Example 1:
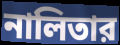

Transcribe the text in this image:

নালিতার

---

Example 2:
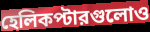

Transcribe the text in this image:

হেলিকপ্টারগুলোও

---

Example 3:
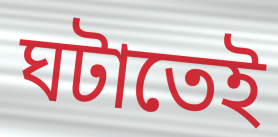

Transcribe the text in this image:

ঘটাতেই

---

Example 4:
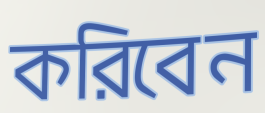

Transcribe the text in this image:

করিবেন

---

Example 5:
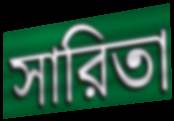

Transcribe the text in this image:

সারিতা